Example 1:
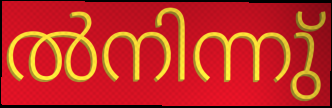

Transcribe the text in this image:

ൽനിന്നു്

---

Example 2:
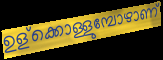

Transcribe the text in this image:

ഉള്ക്കൊള്ളുമ്പോഴാണ്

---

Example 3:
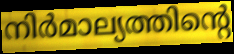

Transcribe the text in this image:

നിർമാല്യത്തിന്റെ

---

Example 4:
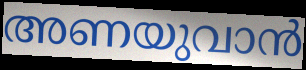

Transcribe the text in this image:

അണയുവാൻ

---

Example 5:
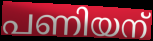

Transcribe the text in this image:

പണിയന്